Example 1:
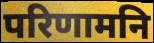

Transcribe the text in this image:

परिणामनि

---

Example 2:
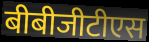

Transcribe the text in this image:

बीबीजीटीएस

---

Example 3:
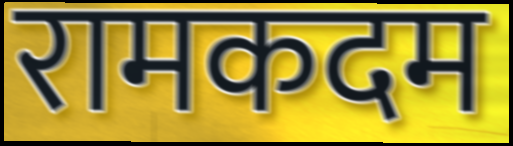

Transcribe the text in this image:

रामकदम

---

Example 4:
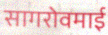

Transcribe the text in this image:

सागरोवमाई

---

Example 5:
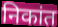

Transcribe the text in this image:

निकांत